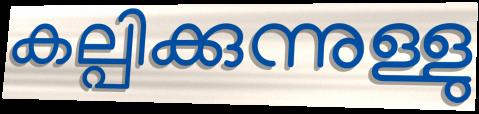
കല്പിക്കുന്നുള്ളു